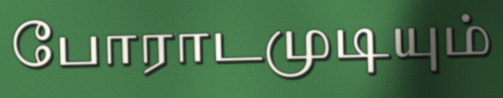
போராடமுடியும்